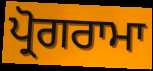
ਪ੍ਰੋਗਰਾਮਾ